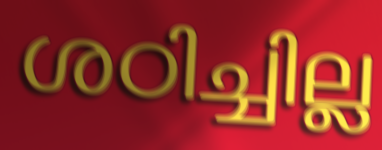
ശഠിച്ചില്ല